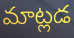
మాట్లడ